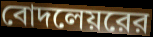
বোদলেয়রের